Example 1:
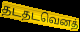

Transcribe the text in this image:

தடதடவெனத்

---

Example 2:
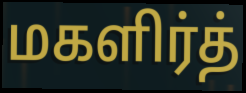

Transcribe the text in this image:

மகளிர்த்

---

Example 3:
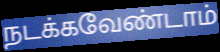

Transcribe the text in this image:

நடக்கவேண்டாம்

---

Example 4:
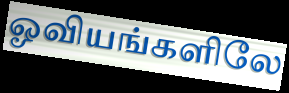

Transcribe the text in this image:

ஓவியங்களிலே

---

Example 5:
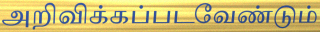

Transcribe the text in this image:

அறிவிக்கப்படவேண்டும்